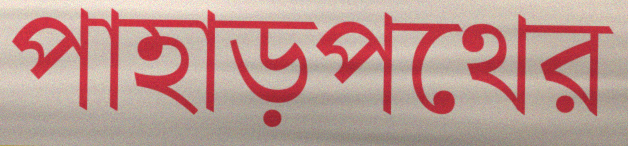
পাহাড়পথের